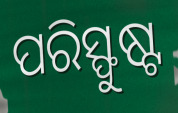
ପରିସ୍ଫୁଷ୍ଟ